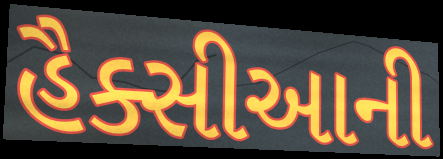
હૈક્સીઆની